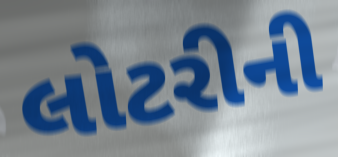
લોટરીની